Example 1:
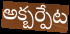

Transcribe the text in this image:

అక్బర్పేట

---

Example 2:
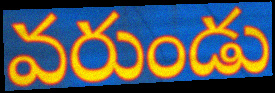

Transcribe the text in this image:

వరుండు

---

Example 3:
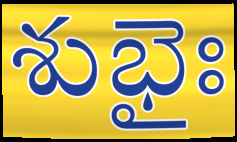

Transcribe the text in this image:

శుభైః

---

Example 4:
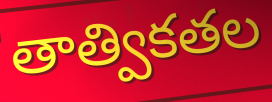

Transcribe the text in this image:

తాత్వికతల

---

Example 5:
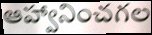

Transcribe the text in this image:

ఆహ్వానించగల